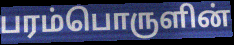
பரம்பொருளின்